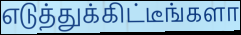
எடுத்துக்கிட்டீங்களா